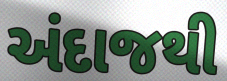
અંદાજથી